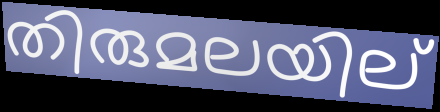
തിരുമലയില്